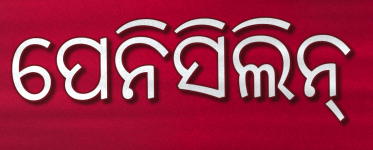
ପେନିସିଲିନ୍